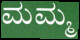
ಮಮ್ಮ